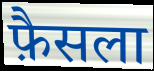
फ़ैसला